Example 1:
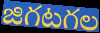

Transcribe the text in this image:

జిగటగల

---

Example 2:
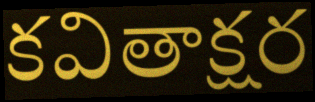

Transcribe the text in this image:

కవితాక్షర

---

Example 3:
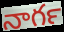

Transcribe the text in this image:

నాగర్‍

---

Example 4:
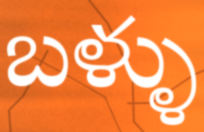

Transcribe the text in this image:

బళ్ళు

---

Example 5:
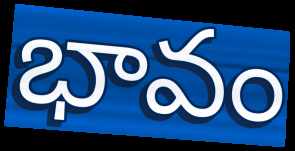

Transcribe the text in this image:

భావం